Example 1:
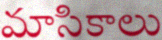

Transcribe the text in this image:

మాసికాలు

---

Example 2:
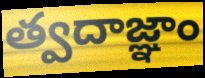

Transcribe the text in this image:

త్వదాజ్ఞాం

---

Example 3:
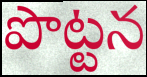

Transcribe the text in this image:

పొట్టన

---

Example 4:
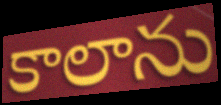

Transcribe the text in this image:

కాలాను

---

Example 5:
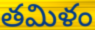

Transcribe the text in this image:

తమిళం